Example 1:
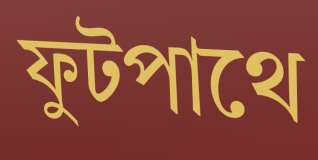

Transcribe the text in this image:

ফুটপাথে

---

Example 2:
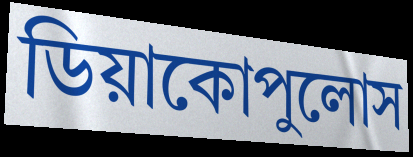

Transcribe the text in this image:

ডিয়াকোপুলোস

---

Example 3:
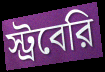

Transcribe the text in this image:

স্ট্রবেরি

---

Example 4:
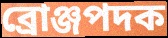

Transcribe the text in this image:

ব্রোঞ্জপদক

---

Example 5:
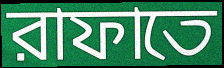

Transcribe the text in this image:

রাফাতে